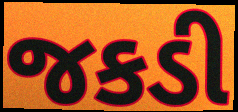
જકડી